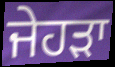
ਜੇਹੜਾ